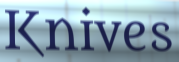
Knives